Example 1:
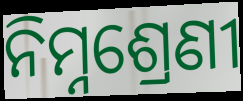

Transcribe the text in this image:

ନିମ୍ନଶ୍ରେଣୀ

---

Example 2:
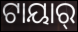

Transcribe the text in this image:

ଟାୟାର୍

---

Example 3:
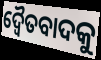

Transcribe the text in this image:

ଦ୍ୱୈତବାଦକୁ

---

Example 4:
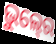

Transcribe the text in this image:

ଭୁଲ୍‍ରେ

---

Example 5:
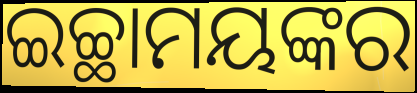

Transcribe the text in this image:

ଇଚ୍ଛାମୟଙ୍କର